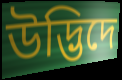
উদ্ভিদে